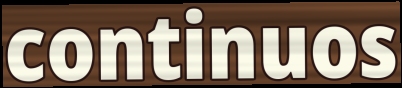
continuos